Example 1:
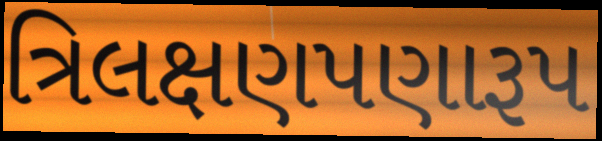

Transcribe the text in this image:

ત્રિલક્ષણપણારૂપ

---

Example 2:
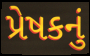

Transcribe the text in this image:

પ્રેષકનું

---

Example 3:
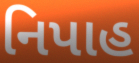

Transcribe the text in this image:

નિપાહ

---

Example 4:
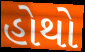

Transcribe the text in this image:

હોથો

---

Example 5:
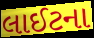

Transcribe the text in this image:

લાઈટના